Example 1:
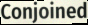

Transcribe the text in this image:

Conjoined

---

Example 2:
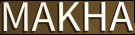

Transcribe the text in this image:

MAKHA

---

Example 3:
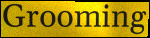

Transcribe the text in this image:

Grooming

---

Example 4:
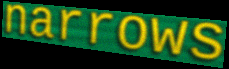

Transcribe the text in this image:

narrows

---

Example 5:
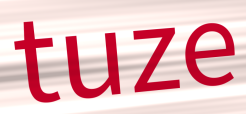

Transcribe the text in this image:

tuze